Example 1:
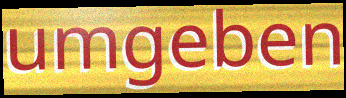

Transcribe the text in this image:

umgeben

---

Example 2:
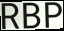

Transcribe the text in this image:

RBP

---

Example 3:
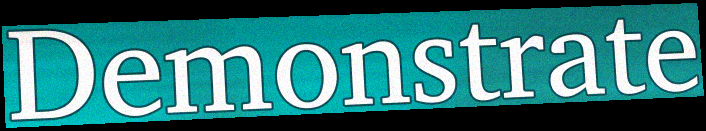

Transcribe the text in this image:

Demonstrate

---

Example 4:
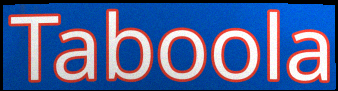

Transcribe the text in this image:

Taboola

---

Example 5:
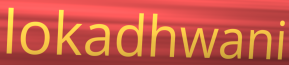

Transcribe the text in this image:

lokadhwani